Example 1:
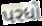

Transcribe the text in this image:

પરધો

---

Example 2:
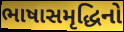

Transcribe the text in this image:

ભાષાસમૃદ્ધિનો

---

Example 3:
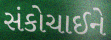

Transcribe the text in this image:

સંકોચાઈને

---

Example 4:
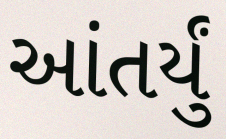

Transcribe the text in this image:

આંતર્યું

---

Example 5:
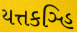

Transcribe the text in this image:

યત્તકઞ્હિ